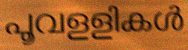
പൂവളളികൾ